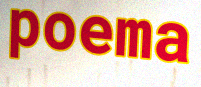
poema